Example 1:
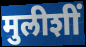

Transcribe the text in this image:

मुलीशीं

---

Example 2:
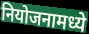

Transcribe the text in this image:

नियोजनामध्ये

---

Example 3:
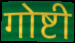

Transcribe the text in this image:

गोष्टी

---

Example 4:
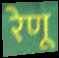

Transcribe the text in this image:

रेणू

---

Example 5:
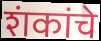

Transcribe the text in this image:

शंकांचे